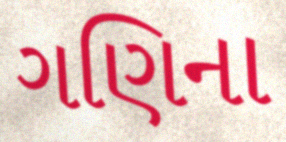
ગણિના